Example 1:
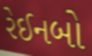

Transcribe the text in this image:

રેઈનબો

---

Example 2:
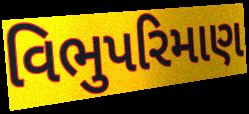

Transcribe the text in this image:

વિભુપરિમાણ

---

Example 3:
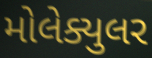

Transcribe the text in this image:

મોલેક્યુલર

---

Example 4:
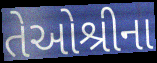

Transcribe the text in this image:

તેઓશ્રીના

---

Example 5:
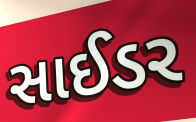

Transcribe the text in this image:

સાઈડર